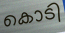
കൊടി